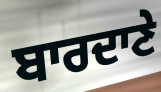
ਬਾਰਦਾਣੇ